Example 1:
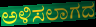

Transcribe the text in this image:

ಅಳಿಸಲಾಗದ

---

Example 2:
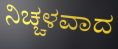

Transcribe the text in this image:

ನಿಚ್ಚಳವಾದ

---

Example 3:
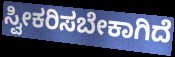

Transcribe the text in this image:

ಸ್ವೀಕರಿಸಬೇಕಾಗಿದೆ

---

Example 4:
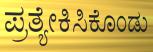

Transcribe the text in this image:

ಪ್ರತ್ಯೇಕಿಸಿಕೊಂಡು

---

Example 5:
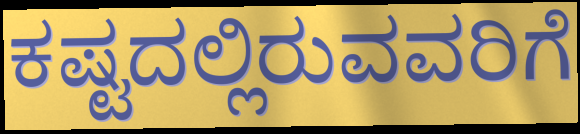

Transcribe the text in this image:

ಕಷ್ಟದಲ್ಲಿರುವವರಿಗೆ